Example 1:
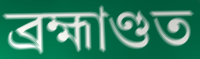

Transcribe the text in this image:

ব্ৰহ্মাণ্ডত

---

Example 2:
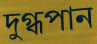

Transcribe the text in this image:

দুগ্ধপান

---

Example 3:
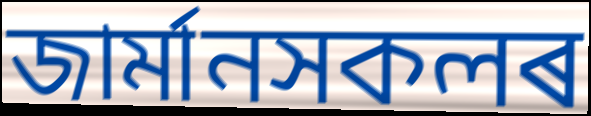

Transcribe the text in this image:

জাৰ্মানসকলৰ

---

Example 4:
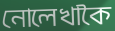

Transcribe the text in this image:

নোলেখাকৈ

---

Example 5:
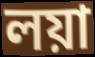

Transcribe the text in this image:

লয়া